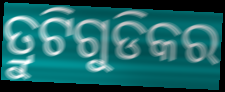
ତ୍ରୁଟିଗୁଡିକର